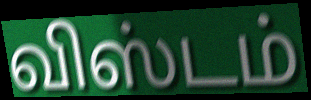
விஸ்டம்